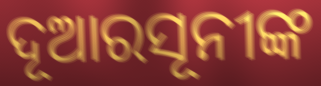
ଦୂଆରସୂନୀଙ୍କ